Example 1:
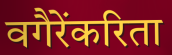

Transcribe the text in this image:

वगैरेंकरिता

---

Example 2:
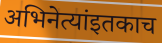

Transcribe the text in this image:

अभिनेत्यांइतकाच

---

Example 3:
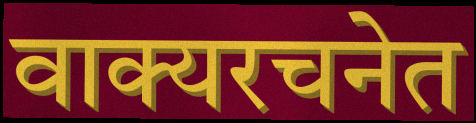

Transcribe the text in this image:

वाक्यरचनेत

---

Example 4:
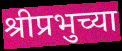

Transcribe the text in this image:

श्रीप्रभुच्या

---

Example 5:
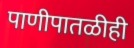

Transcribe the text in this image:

पाणीपातळीही